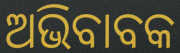
ଅଭିବାବକ